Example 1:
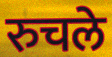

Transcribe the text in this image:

रुचले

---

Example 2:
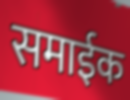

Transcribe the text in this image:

समाईक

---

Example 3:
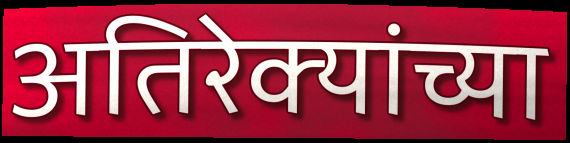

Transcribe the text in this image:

अतिरेक्‍यांच्या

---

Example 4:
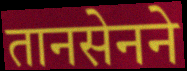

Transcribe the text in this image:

तानसेनने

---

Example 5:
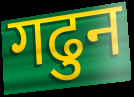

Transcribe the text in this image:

गढुन